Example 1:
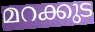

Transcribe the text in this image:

മറക്കുട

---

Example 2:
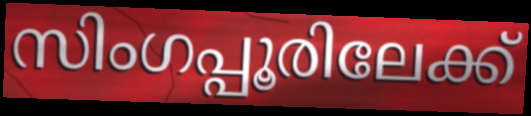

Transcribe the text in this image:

സിംഗപ്പൂരിലേക്ക്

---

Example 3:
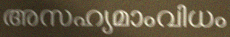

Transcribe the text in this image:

അസഹ്യമാംവിധം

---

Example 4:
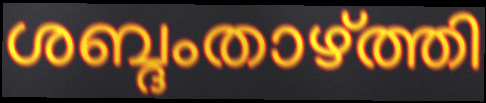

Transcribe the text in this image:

ശബ്ദംതാഴ്ത്തി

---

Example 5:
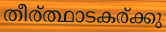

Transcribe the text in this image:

തീര്ത്ഥാടകര്ക്കു